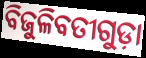
ବିଜୁଳିବତୀଗୁଡ଼ା